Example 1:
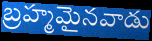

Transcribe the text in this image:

బ్రహ్మమైనవాడు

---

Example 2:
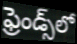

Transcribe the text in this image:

ఫ్రెండ్స్‌లో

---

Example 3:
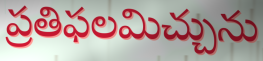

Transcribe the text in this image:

ప్రతిఫలమిచ్చును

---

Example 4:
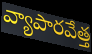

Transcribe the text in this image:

వ్యాపారవేత్త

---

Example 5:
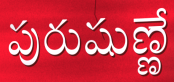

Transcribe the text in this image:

పురుషుణ్ణే